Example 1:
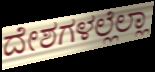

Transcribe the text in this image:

ದೇಶಗಳಲ್ಲೆಲ್ಲಾ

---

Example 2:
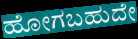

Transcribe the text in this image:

ಹೋಗಬಹುದೇ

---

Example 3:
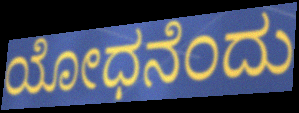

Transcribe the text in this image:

ಯೋಧನೆಂದು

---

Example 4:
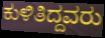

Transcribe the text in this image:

ಕುಳಿತಿದ್ದವರು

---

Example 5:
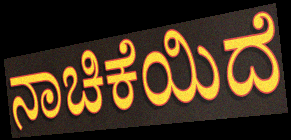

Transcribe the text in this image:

ನಾಚಿಕೆಯಿದೆ